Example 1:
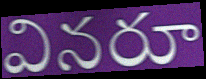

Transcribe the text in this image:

వినరూ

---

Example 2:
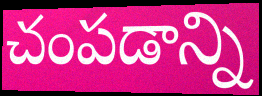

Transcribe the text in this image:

చంపడాన్ని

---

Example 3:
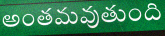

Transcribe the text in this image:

అంతమవుతుంది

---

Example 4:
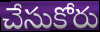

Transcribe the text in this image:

చేసుకోరు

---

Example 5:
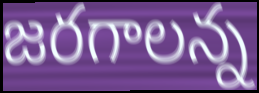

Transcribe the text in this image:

జరగాలన్న